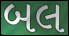
બલ